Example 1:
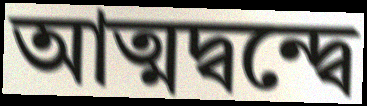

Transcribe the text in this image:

আত্মদ্বন্দ্বে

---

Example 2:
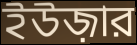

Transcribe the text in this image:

ইউজ়ার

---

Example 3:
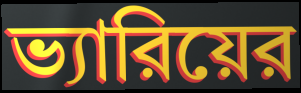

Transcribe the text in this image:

ভ্যারিয়ের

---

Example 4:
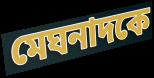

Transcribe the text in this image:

মেঘনাদকে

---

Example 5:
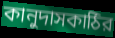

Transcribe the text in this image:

কানুদাসকাঠির